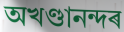
অখণ্ডানন্দৰ